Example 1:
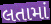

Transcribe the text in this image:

લતામાં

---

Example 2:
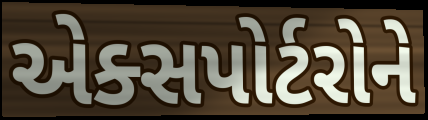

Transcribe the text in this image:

એક્સપોર્ટરોને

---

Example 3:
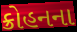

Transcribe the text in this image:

ક્રોહનના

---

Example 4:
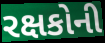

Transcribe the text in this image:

રક્ષકોની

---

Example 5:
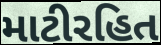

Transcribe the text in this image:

માટીરહિત